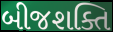
બીજશક્તિ